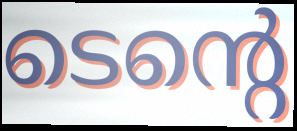
ടെന്റെ